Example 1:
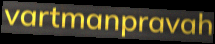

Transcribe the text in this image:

vartmanpravah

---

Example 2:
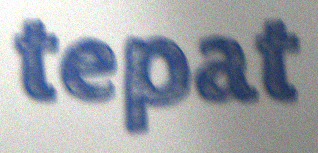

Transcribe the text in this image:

tepat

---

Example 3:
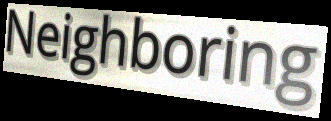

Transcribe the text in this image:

Neighboring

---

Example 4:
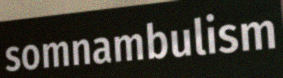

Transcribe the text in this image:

somnambulism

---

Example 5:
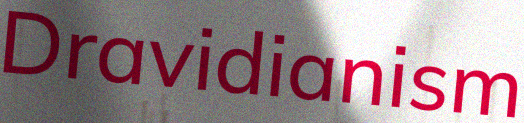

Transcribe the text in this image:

Dravidianism